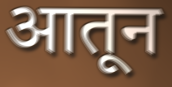
आतून